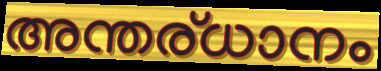
അന്തര്ധാനം